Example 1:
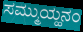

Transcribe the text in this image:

ಸಮ್ಮುಯ್ಹನಂ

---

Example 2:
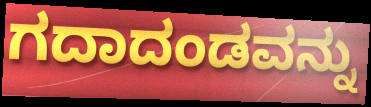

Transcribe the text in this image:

ಗದಾದಂಡವನ್ನು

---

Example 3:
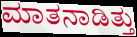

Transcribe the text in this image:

ಮಾತನಾಡಿತ್ತು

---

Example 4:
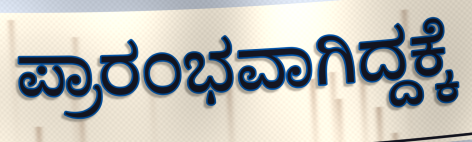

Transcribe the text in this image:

ಪ್ರಾರಂಭವಾಗಿದ್ದಕ್ಕೆ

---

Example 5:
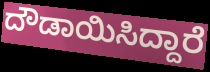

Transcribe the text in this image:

ದೌಡಾಯಿಸಿದ್ದಾರೆ